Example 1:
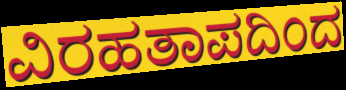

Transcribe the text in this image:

ವಿರಹತಾಪದಿಂದ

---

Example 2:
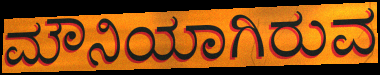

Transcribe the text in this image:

ಮೌನಿಯಾಗಿರುವ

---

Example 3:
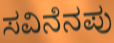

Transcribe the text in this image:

ಸವಿನೆನಪು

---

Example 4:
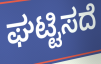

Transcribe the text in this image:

ಘಟ್ಟಿಸದೆ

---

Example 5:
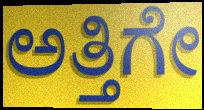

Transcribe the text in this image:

ಅತ್ತಿಗೇ